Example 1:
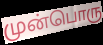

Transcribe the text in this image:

முன்பொரு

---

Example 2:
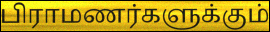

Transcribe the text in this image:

பிராமணர்களுக்கும்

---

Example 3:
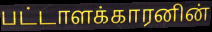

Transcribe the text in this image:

பட்டாளக்காரனின்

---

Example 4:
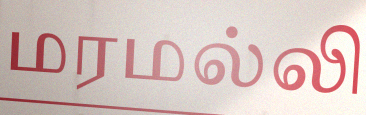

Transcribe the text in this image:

மரமல்லி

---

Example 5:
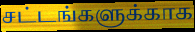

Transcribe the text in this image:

சட்டங்களுக்காக